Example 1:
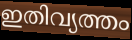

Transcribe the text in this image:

ഇതിവ്യത്തം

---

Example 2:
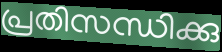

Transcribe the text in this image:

പ്രതിസന്ധിക്കു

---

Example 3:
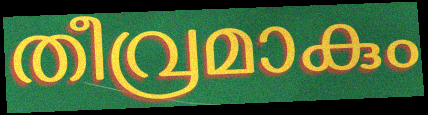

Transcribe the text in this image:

തീവ്രമാകും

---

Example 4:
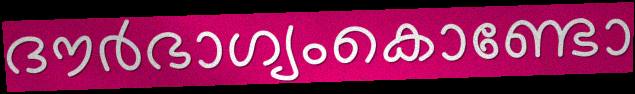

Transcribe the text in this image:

ദൗർഭാഗ്യംകൊണ്ടോ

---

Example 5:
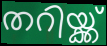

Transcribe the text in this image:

തറിയ്ക്ക്